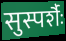
सुस्पर्शैः